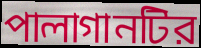
পালাগানটির